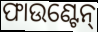
ଫାଉଣ୍ଟେନ୍